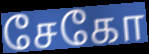
சேகோ